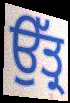
ਉੱਤ੍ਰ